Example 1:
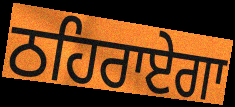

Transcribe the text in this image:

ਠਹਿਰਾਏਗਾ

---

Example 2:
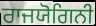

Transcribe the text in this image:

ਰਾਜਯੋਗਿਨੀ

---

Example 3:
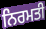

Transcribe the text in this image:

ਨਿਰਮਤੀ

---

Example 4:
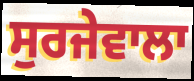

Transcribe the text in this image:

ਸੁਰਜੇਵਾਲਾ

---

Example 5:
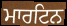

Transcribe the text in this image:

ਮਾਰਟਿਨ